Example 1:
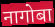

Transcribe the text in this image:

नागोबा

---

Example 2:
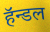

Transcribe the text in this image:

हॅन्डल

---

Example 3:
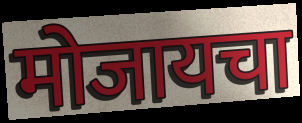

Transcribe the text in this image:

मोजायचा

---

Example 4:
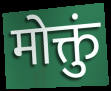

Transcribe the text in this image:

मोक्तुं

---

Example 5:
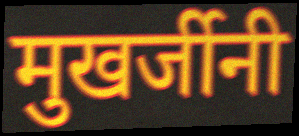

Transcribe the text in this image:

मुखर्जीनी